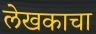
लेखकाचा